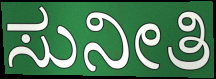
ಸುನೀತಿ